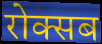
रोक्सब